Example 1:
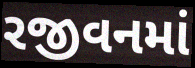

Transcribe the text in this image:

રજીવનમાં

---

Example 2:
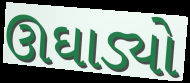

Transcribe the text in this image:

ઊઘાડ્યો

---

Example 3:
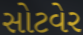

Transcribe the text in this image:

સોટવેર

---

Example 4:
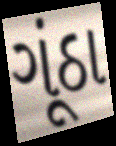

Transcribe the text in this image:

ગૂંઠા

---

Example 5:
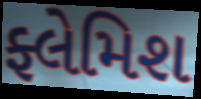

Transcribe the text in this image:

ફ્લેમિશ